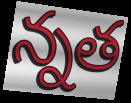
న్నత